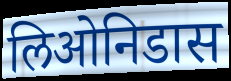
लिओनिडास